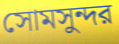
সোমসুন্দর